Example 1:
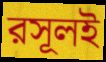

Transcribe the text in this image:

রসূলই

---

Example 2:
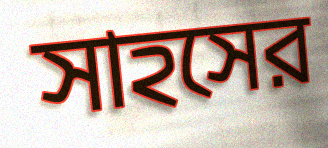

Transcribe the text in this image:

সাহসের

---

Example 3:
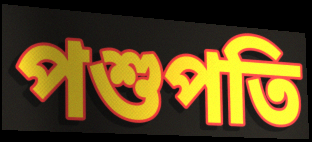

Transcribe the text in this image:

পশুপতি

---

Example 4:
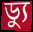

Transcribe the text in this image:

ড্যু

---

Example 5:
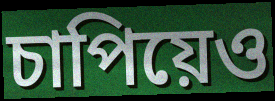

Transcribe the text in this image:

চাপিয়েও